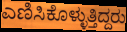
ಎಣಿಸಿಕೊಳ್ಳುತ್ತಿದ್ದರು